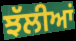
ਝੱਲੀਆਂ